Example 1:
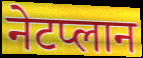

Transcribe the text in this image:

नेटप्लान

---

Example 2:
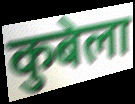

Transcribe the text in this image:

कुबेला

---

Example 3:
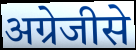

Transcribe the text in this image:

अग्रेजीसे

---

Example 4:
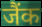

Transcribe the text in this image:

जैंक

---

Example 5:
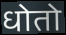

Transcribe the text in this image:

धोतो